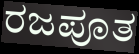
ರಜಪೂತ